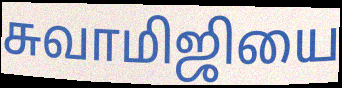
சுவாமிஜியை